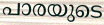
പാരയുടെ